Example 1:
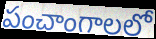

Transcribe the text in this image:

పంచాంగాలలో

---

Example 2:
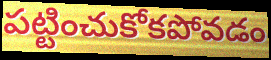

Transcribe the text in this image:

పట్టించుకోకపోవడం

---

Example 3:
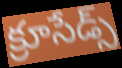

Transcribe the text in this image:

క్రూసేడ్స్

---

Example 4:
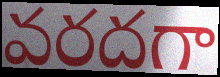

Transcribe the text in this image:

వరదగా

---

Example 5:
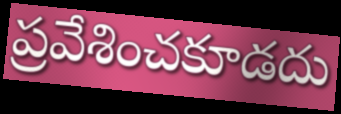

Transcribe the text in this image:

ప్రవేశించకూడదు